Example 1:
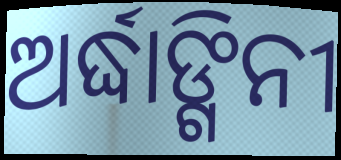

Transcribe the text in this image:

ଅର୍ଦ୍ଧାଙ୍ଗିନୀ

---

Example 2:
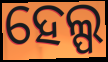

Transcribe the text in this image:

ହେଲ୍ପ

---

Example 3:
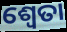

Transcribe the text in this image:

ଶ୍ୱେତା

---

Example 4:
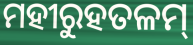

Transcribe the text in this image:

ମହୀରୁହତଳମ୍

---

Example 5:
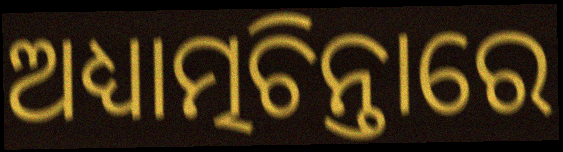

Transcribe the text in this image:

ଅଧ୍ୟାତ୍ମଚିନ୍ତାରେ